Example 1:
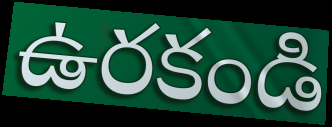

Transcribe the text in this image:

ఉరకండి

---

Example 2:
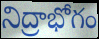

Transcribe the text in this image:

నిద్రాభోగం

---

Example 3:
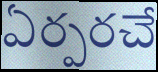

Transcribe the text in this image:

ఏర్పరచే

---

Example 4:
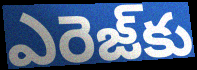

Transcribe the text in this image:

ఎరెజ్‌కు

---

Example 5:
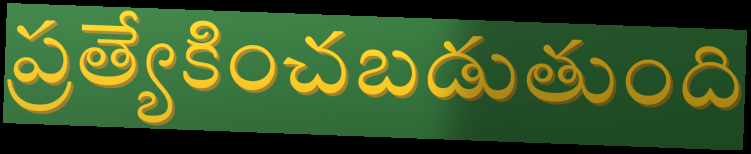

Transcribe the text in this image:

ప్రత్యేకించబడుతుంది